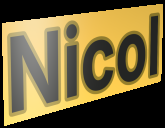
Nicol